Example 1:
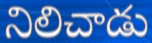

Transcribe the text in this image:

నిలిచాడు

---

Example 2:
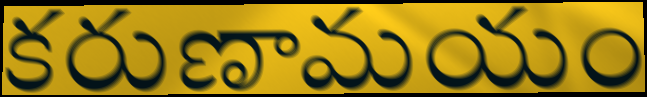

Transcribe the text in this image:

కరుణామయం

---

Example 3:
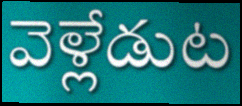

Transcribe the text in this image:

వెళ్లేడుట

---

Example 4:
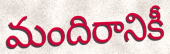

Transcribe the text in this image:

మందిరానికీ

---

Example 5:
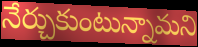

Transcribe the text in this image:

నేర్చుకుంటున్నామని